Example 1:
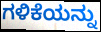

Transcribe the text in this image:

ಗಳಿಕೆಯನ್ನು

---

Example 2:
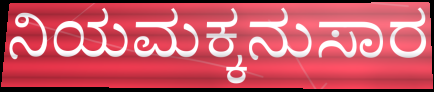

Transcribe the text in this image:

ನಿಯಮಕ್ಕನುಸಾರ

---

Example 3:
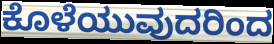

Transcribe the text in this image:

ಕೊಳೆಯುವುದರಿಂದ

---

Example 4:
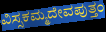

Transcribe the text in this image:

ವಿಸ್ಸಕಮ್ಮದೇವಪುತ್ತಂ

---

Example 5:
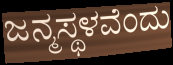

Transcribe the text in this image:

ಜನ್ಮಸ್ಥಳವೆಂದು